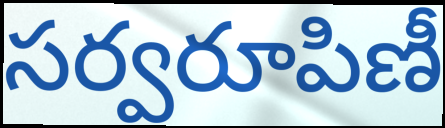
సర్వరూపిణీ